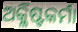
ଅକ୍ଳିଷ୍ଟକର୍ମା